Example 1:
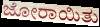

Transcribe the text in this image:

ಜೋರಾಯಿತು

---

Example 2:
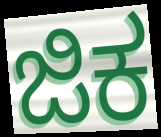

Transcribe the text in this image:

ಜಿಕ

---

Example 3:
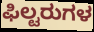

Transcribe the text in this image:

ಫಿಲ್ಟರುಗಳ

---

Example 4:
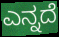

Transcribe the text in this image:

ಎನ್ನದೆ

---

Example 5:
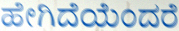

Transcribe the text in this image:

ಹೇಗಿದೆಯೆಂದರೆ